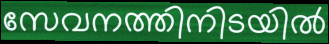
സേവനത്തിനിടയിൽ